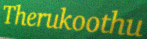
Therukoothu